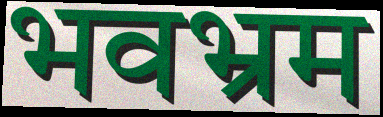
भवभ्रम